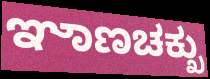
ಞಾಣಚಕ್ಖು